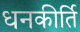
धनकीर्ति